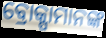
ବ୍ରୋକ୍ପାମାନଙ୍କ